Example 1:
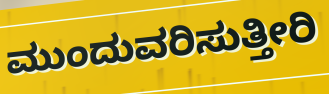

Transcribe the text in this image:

ಮುಂದುವರಿಸುತ್ತೀರಿ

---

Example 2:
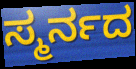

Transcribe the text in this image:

ಸ್ಮರ್ನದ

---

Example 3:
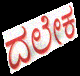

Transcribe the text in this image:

ದಲೇಕ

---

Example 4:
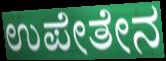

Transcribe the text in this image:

ಉಪೇತೇನ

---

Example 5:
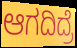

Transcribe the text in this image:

ಆಗದಿದ್ರೆ